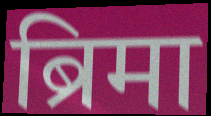
ब्रिमा